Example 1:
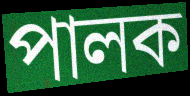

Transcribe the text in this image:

পালক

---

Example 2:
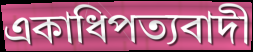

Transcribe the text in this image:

একাধিপত্যবাদী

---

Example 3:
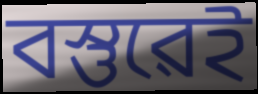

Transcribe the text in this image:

বস্তুৱেই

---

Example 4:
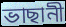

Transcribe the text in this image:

ভাছানী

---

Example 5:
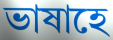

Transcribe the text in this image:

ভাষাহে